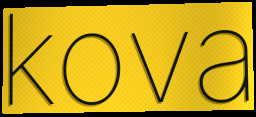
kova